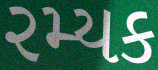
રમ્યક